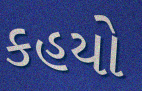
કહયો